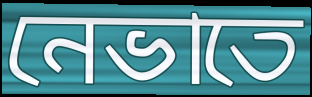
নেভাতে